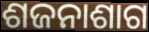
ଶଜନାଶାଗ